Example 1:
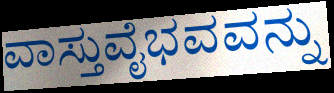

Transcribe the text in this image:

ವಾಸ್ತುವೈಭವವನ್ನು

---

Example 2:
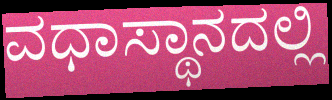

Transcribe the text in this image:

ವಧಾಸ್ಥಾನದಲ್ಲಿ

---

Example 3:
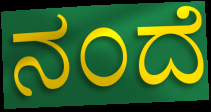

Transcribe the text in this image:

ನಂದೆ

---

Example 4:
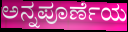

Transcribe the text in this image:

ಅನ್ನಪೂರ್ಣೆಯ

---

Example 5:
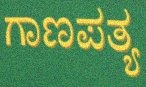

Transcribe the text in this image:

ಗಾಣಪತ್ಯ